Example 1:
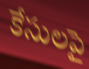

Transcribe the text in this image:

కేసులపై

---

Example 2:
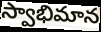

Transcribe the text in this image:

స్వాభిమాన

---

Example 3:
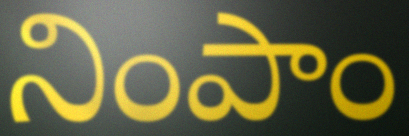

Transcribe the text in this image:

నింపాం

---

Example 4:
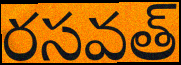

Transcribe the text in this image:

రసవత్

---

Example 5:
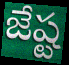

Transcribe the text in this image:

జేష్ట